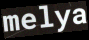
melya